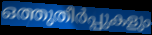
ഒത്തുതീർപ്പുകളും